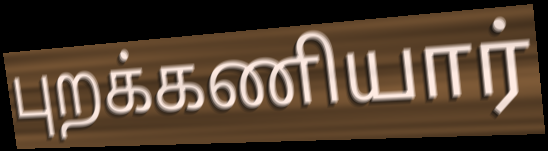
புறக்கணியார்